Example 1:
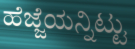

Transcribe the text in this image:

ಹೆಜ್ಜೆಯನ್ನಿಟ್ಟು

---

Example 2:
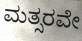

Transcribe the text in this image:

ಮತ್ಸರವೇ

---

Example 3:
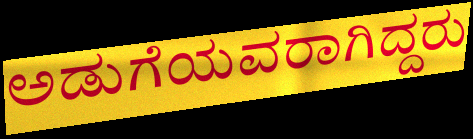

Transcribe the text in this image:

ಅಡುಗೆಯವರಾಗಿದ್ದರು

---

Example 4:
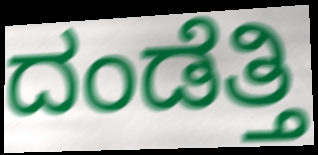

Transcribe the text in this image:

ದಂಡೆತ್ತಿ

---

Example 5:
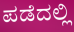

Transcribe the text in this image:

ಪಡೆದಲ್ಲಿ